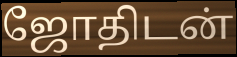
ஜோதிடன்